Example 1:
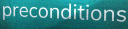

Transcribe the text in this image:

preconditions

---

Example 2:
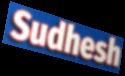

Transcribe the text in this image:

Sudhesh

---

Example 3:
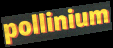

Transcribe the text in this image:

pollinium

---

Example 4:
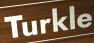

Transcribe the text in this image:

Turkle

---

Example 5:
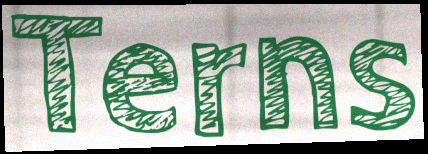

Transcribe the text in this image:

Terns